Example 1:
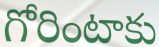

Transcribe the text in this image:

గోరింటాకు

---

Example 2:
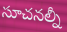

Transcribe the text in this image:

సూచనల్నీ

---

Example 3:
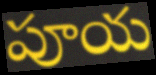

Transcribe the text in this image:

పూయ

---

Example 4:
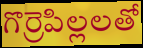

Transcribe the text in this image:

గొర్రెపిల్లలతో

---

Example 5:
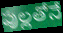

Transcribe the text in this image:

పుల్లతోనే